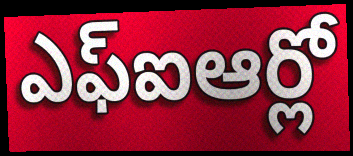
ఎఫ్ఐఆర్లో